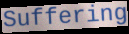
Suffering